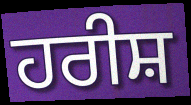
ਹਰੀਸ਼